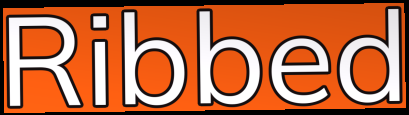
Ribbed